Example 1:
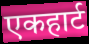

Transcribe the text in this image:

एकहार्ट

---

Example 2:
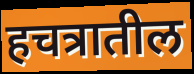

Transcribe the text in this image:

हचत्रातील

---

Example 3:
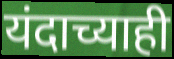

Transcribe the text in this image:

यंदाच्याही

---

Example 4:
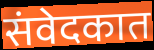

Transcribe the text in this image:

संवेदकात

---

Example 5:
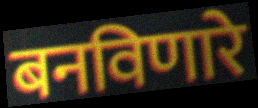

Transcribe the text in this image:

बनविणारे